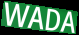
WADA